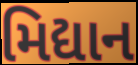
મિદ્યાન